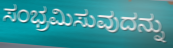
ಸಂಭ್ರಮಿಸುವುದನ್ನು